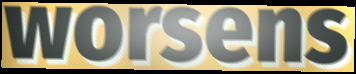
worsens